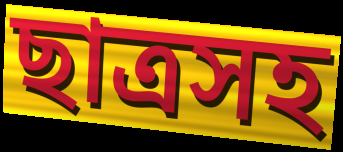
ছাত্রসহ